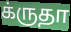
க்ருதா